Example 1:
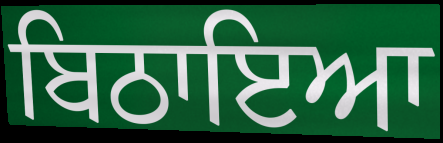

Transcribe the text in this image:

ਬਿਠਾਇਆ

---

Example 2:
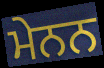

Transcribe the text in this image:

ਮੇਨਨ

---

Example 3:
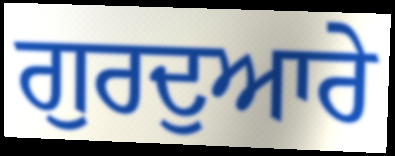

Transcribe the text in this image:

ਗੁਰਦੁਆਰੇ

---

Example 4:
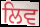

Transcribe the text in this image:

ਲਿਵ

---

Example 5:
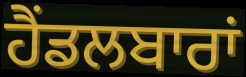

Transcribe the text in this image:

ਹੈਂਡਲਬਾਰਾਂ